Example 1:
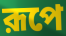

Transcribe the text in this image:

রূপে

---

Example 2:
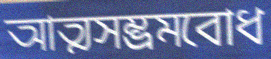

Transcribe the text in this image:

আত্মসম্ভ্রমবোধ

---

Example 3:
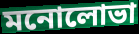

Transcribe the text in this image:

মনোলোভা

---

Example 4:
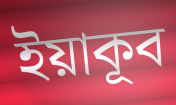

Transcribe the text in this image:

ইয়াকূব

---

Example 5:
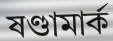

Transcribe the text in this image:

ষণ্ডামার্ক